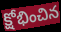
క్షోభించిన